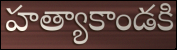
హత్యాకాండకి